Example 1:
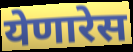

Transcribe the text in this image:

येणारेस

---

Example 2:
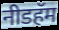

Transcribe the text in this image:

नीडहॅम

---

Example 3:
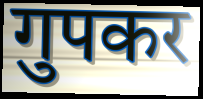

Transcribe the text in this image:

गुपकर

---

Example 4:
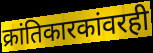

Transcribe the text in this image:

क्रांतिकारकांवरही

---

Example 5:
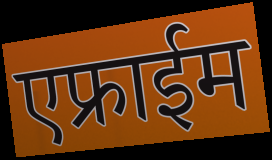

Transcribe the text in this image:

एफ्राईम